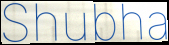
Shubha